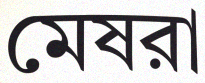
মেষরা